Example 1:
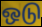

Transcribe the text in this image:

ஒடு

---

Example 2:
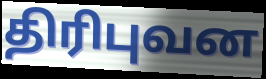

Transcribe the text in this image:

திரிபுவன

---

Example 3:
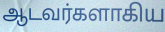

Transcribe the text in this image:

ஆடவர்களாகிய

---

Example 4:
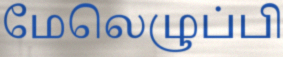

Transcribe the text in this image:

மேலெழுப்பி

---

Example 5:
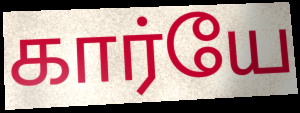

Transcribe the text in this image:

கார்யே